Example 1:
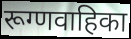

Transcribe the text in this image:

रूग्णवाहिका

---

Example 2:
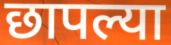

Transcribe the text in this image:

छापल्या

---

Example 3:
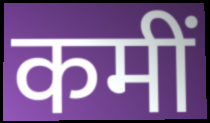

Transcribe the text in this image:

कमीं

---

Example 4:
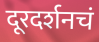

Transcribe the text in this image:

दूरदर्शनचं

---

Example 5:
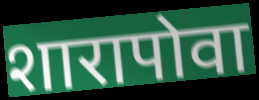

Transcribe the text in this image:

शारापोवा